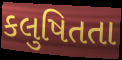
કલુષિતતા